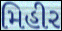
મિહીર